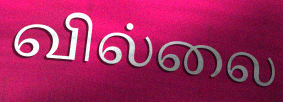
வில்லை